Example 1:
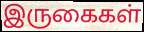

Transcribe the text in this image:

இருகைகள்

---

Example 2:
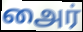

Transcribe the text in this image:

அைர்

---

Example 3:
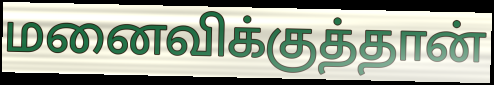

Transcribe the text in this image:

மனைவிக்குத்தான்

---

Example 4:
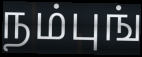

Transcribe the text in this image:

நம்புங்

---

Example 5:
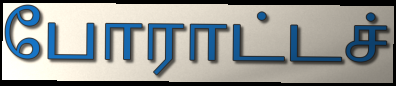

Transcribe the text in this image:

போராட்டச்